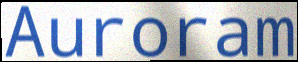
Auroram